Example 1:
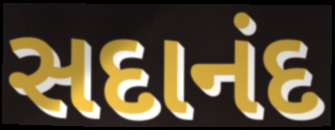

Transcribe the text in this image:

સદાનંદ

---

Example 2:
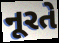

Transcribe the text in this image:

નૂરતે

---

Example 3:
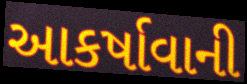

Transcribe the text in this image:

આકર્ષાવાની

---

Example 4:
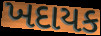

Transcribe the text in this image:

ખદાયક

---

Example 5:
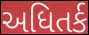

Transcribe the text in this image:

અધિતર્ક